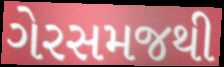
ગેરસમજથી